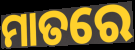
ମାତରେ